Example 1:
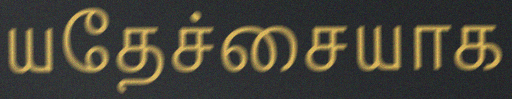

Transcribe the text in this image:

யதேச்சையாக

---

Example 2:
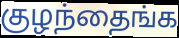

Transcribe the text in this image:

குழந்தைங்க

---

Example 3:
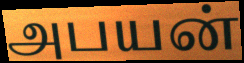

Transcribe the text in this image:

அபயன்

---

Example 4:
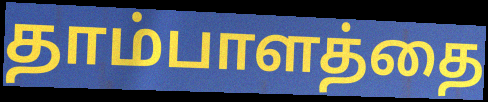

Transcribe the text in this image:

தாம்பாளத்தை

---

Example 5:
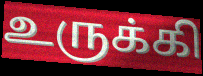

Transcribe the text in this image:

உருக்கி